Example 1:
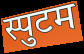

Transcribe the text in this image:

स्पुटम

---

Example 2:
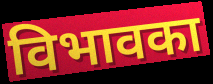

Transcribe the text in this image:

विभावका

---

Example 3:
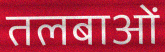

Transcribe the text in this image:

तलबाओं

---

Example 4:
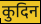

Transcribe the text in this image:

कुदिन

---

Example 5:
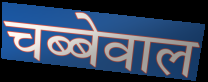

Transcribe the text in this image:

चब्बेवाल